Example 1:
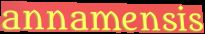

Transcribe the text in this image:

annamensis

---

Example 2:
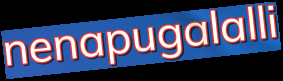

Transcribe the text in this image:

nenapugalalli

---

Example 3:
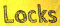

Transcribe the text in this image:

Locks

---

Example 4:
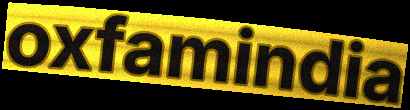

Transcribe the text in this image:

oxfamindia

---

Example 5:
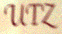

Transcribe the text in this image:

UTZ